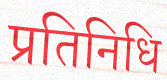
प्रतिनिधि